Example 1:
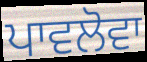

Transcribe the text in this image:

ਪਾਵਲੋਵਾ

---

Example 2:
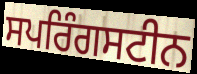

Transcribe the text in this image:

ਸਪਰਿੰਗਸਟੀਨ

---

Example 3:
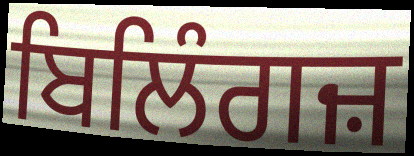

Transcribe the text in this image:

ਬਿਲਿੰਗਜ਼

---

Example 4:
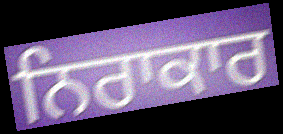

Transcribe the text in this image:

ਨਿਰਾਕਾਰ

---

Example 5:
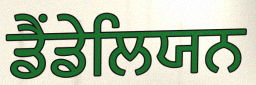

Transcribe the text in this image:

ਡੈਂਡੇਲਿਯਨ